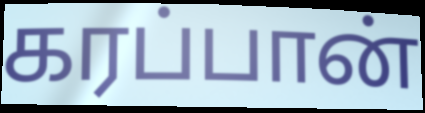
கரப்பான்